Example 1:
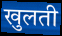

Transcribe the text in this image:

खुलती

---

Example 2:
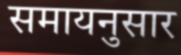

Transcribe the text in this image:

समायनुसार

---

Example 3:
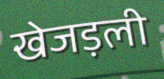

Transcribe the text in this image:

खेजड़ली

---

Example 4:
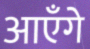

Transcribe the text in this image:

आएँगे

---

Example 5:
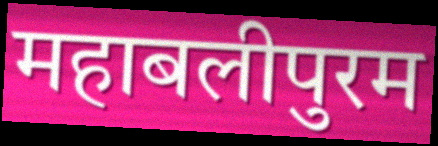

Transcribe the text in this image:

महाबलीपुरम